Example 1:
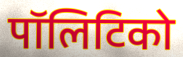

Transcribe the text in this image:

पॉलिटिको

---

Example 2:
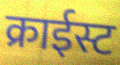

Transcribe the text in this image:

क्राईस्ट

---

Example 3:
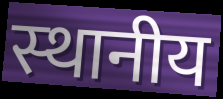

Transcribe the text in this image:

स्‍थानीय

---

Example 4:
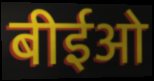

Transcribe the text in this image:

बीईओ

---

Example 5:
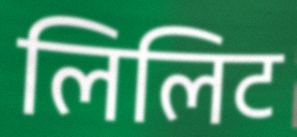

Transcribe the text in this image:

लिलिट